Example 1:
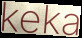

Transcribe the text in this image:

keka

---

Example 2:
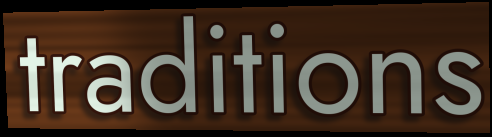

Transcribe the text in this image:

traditions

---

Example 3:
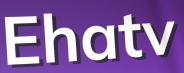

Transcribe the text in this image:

Ehatv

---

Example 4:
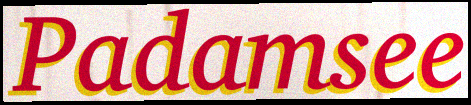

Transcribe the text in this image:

Padamsee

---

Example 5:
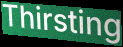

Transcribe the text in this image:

Thirsting